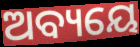
ଅବ୍ୟୟେ